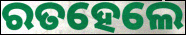
ରତହେଲେ